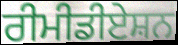
ਰੀਮੀਡੀਏਸ਼ਨ